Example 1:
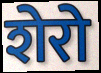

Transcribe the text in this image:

शेरो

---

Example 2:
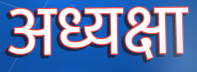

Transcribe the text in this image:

अध्यक्षा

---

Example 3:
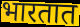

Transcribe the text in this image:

भारतात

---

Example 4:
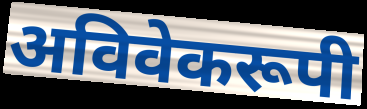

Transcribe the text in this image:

अविवेकरूपी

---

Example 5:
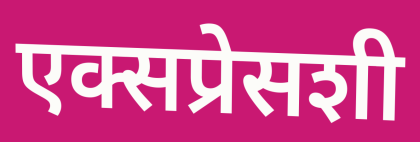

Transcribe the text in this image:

एक्सप्रेसशी